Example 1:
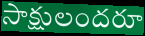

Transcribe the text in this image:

సాక్షులందరూ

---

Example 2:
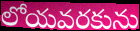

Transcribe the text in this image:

లోయవరకును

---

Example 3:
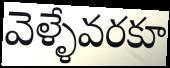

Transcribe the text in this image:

వెళ్ళేవరకూ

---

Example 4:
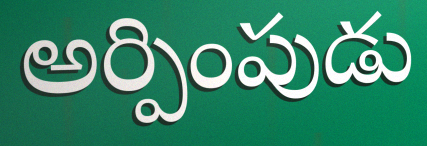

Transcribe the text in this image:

అర్పింపుడు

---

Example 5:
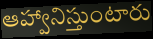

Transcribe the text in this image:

ఆహ్వానిస్తుంటారు